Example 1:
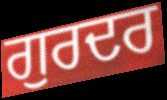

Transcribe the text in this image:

ਗੁਰਦਰ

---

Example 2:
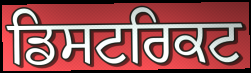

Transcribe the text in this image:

ਡਿਸਟਰਿਕਟ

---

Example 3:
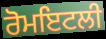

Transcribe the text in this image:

ਰੋਮਇਟਲੀ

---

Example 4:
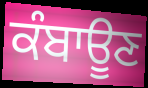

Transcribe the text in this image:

ਕੰਬਾਊਣ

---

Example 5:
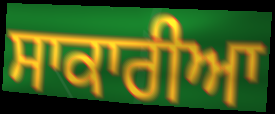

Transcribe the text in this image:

ਸਾਕਾਰੀਆ